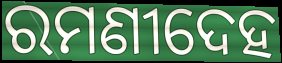
ରମଣୀଦେହ